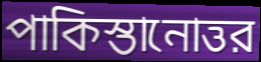
পাকিস্তানোত্তর